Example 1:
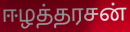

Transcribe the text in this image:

ஈழத்தரசன்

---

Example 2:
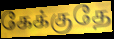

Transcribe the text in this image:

கேக்குதே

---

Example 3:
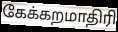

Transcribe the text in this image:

கேக்கறமாதிரி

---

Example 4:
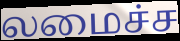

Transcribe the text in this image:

லமைச்ச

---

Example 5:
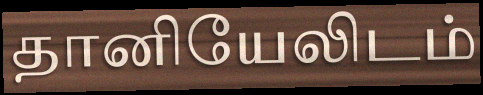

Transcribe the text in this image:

தானியேலிடம்